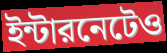
ইন্টারনেটেও